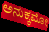
ಅನುಕ್ಕಮೋ